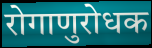
रोगाणुरोधक